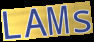
LAMs